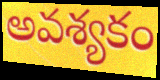
అవశ్యకం